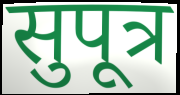
सुपूत्र